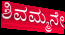
ಶಿವಮ್ಮನೇ